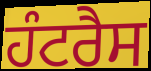
ਹੰਟਰੈਸ